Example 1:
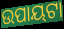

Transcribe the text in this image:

ଉପାୟଟା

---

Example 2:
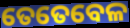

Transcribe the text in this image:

ତେତେବେଳ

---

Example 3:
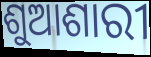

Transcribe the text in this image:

ଶୁଆଶାରୀ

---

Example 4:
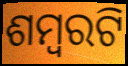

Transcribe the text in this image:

ଶମ୍ବରଟି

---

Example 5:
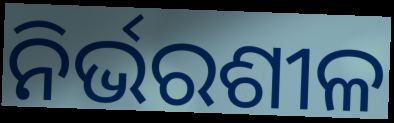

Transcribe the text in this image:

ନିର୍ଭରଶୀଳ